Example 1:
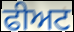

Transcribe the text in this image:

ਫੀਅਟ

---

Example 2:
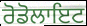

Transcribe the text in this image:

ਰੋਡੋਲਾਇਟ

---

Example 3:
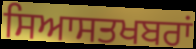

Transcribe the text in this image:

ਸਿਆਸਤਖਬਰਾਂ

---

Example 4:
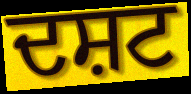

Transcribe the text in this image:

ਦਸ਼ਟ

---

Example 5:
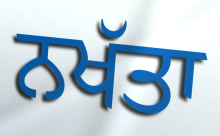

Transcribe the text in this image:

ਨਖੱਤਾ